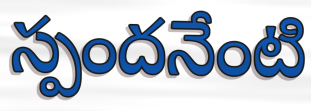
స్పందనేంటి